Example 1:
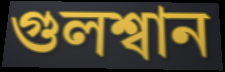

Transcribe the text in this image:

গুলশ্বান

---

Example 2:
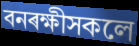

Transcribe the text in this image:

বনৰক্ষীসকলে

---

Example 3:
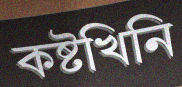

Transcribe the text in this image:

কষ্টখিনি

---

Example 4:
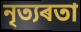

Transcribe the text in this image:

নৃত্যৰতা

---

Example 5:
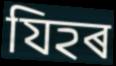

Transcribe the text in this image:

যিহৰ